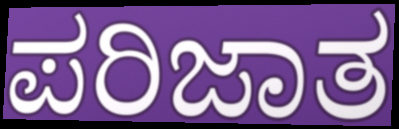
ಪರಿಜಾತ